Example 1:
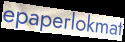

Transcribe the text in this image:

epaperlokmat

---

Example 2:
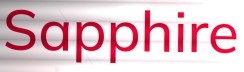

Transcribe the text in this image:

Sapphire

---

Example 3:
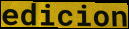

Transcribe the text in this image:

edicion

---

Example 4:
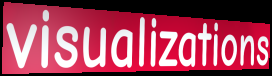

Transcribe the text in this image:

visualizations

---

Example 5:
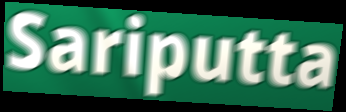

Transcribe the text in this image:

Sariputta